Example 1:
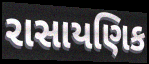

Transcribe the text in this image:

રાસાયણિક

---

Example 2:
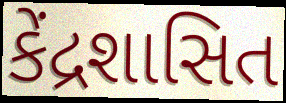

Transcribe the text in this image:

કેંદ્રશાસિત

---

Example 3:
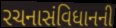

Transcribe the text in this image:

રચનાસંવિધાનની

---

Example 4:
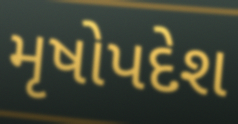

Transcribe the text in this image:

મૃષોપદેશ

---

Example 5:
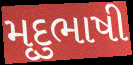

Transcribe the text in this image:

મૃદુભાષી